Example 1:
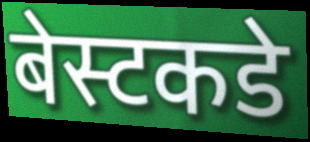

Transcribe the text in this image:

बेस्टकडे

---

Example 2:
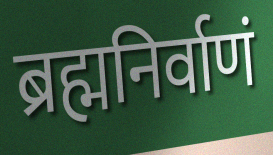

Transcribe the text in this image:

ब्रह्मनिर्वाणं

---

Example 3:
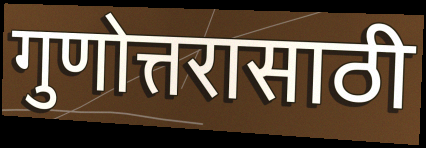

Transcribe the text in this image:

गुणोत्तरासाठी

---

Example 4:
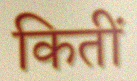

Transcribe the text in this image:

कितीं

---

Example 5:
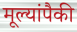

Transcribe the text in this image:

मूल्यांपैकी